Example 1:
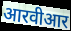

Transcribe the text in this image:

आरवीआर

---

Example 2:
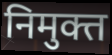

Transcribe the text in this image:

निमुक्त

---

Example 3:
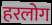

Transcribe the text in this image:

हरलोग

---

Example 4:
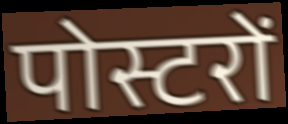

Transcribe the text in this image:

पोस्‍टरों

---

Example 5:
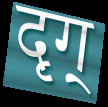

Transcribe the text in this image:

दृग्